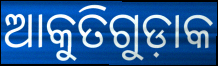
ଆକୁତିଗୁଡ଼ାକ